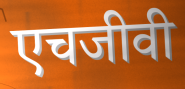
एचजीवी